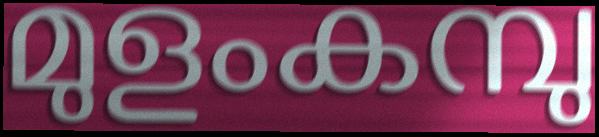
മുളംകമ്പു